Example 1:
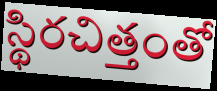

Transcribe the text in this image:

స్థిరచిత్తంతో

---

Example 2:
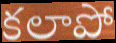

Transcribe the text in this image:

కలాపో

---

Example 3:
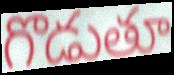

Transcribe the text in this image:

గొడుతూ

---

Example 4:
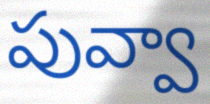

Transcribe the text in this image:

పువ్వా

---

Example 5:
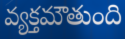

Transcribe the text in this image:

వ్యక్తమౌతుంది